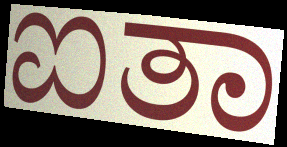
ಐತಾ